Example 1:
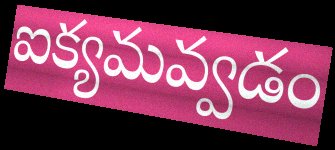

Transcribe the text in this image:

ఐక్యమవ్వడం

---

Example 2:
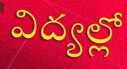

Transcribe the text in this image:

విద్యల్లో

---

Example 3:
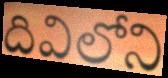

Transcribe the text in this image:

దివిలోని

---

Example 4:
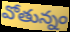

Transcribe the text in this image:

వోతున్నం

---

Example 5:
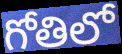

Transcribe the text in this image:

గోతిలో